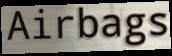
Airbags